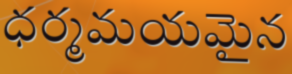
ధర్మమయమైన